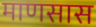
माणसास